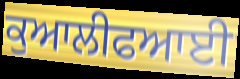
ਕੁਆਲੀਫਆਈ